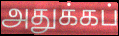
அதுக்கப்